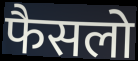
फैसलो